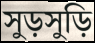
সুড়সুড়ি